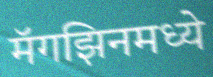
मॅगझिनमध्ये